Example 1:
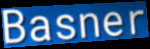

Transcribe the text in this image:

Basner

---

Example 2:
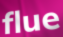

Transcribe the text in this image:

flue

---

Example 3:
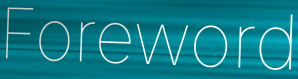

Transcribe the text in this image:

Foreword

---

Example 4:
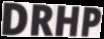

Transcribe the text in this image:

DRHP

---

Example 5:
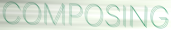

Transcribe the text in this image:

COMPOSING